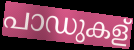
പാഡുകള്